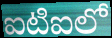
ఐటిఐలో